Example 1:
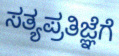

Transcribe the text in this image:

ಸತ್ಯಪ್ರತಿಜ್ಞೆಗೆ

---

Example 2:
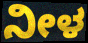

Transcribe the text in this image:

ನೀಳ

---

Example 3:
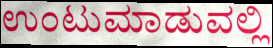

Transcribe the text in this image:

ಉಂಟುಮಾಡುವಲ್ಲಿ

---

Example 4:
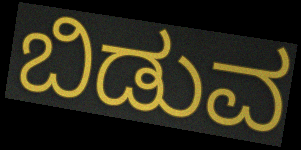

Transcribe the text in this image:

ಬಿಡುವ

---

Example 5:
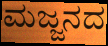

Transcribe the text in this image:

ಮಜ್ಜನದ